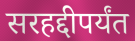
सरहद्दीपर्यंत